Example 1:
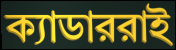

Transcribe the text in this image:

ক্যাডাররাই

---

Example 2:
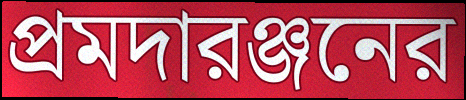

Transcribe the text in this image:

প্রমদারঞ্জনের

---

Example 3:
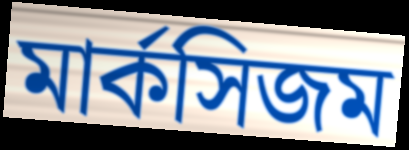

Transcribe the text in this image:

মার্কসিজম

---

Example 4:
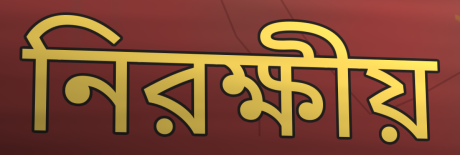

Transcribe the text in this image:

নিরক্ষীয়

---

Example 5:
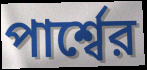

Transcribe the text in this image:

পার্শ্বের